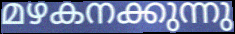
മഴകനക്കുന്നു